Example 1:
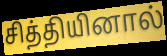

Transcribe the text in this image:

சித்தியினால்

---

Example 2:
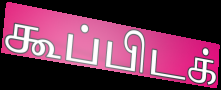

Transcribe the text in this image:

கூப்பிடக்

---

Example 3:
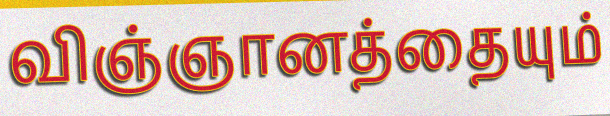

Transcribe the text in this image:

விஞ்ஞானத்தையும்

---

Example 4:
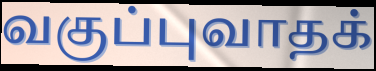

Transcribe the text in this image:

வகுப்புவாதக்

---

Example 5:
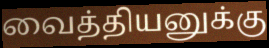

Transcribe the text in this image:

வைத்தியனுக்கு